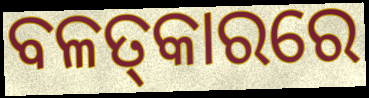
ବଳତ୍‌କାରରେ